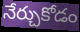
నేర్చుకోడం